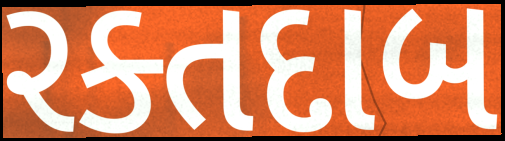
રક્તદાબ